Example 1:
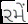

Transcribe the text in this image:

રમેં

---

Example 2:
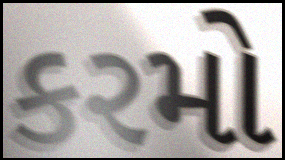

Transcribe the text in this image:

કરમો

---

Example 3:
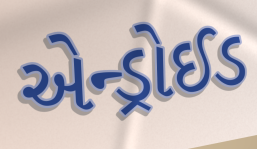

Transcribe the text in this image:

એન્ડ્રોઈડ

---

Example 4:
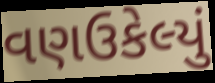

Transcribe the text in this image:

વણઉકેલ્યું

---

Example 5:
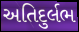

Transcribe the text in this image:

અતિદુર્લભ